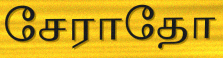
சேராதோ